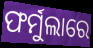
ଫର୍ମୁଲାରେ